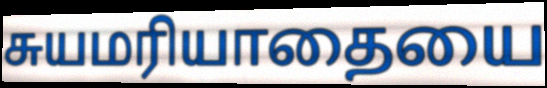
சுயமரியாதையை